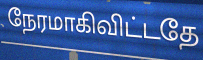
நேரமாகிவிட்டதே